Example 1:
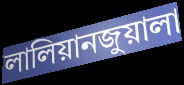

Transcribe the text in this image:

লালিয়ানজুয়ালা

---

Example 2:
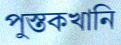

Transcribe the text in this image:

পুস্তকখানি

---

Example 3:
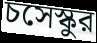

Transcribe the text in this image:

চসেস্কুর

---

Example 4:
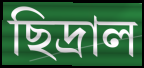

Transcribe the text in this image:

ছিদ্রাল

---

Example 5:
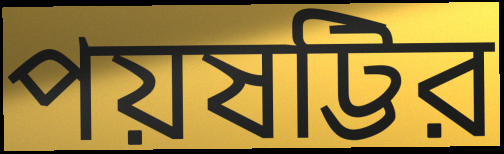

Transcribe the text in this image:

পয়ষট্টির